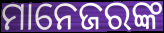
ମାନେଜରଙ୍କ